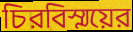
চিরবিস্ময়ের